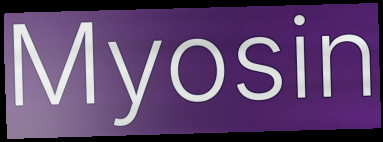
Myosin